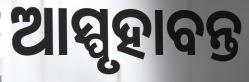
ଆସ୍ପୃହାବନ୍ତ